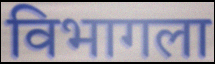
विभागला